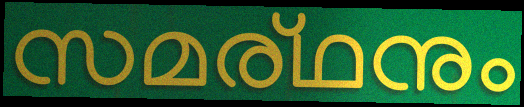
സമര്ഥനും